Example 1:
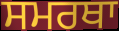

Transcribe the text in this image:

ਸਮਰਥਾ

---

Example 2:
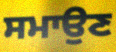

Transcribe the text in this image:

ਸਮਾਉਣ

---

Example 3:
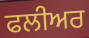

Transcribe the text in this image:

ਫਲੀਅਰ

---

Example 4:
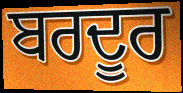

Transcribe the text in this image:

ਬਰਦੂਰ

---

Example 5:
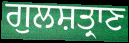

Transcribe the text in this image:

ਗੁਲਸ਼ਤ੍ਰਾਣ